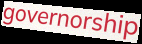
governorship